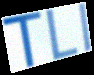
TLI